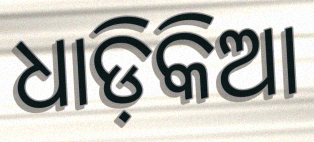
ଧାଡ଼ିକିଆ